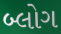
બ્લોગ